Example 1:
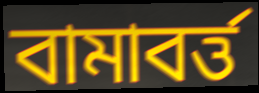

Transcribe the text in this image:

বামাবর্ত্ত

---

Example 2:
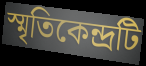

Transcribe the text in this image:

স্মৃতিকেন্দ্রটি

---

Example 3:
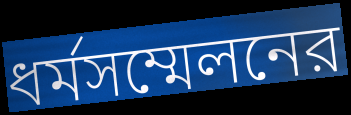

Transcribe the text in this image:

ধর্মসম্মেলনের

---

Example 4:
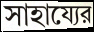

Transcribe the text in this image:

সাহায্য়ের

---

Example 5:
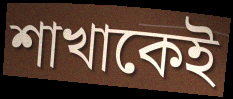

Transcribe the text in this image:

শাখাকেই